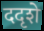
ददृशे